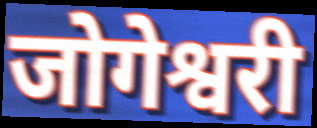
जोगेश्वरी